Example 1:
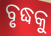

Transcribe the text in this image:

ବୃଦ୍ଧକୁ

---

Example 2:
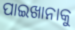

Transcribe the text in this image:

ପାଇଖାନାକୁ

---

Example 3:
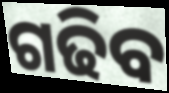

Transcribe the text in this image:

ଗଢିବ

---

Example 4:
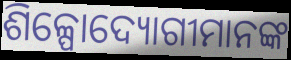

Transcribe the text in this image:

ଶିଳ୍ପୋଦ୍ୟୋଗୀମାନଙ୍କ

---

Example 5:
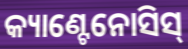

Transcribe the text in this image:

କ୍ୟାଣ୍ଟେନୋସିସ୍